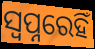
ସ୍ୱପ୍ନରେହିଁ